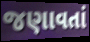
જણાવતાં